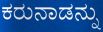
ಕರುನಾಡನ್ನು